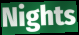
Nights